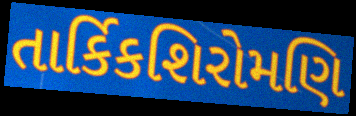
તાર્કિકશિરોમણિ